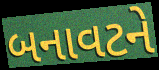
બનાવટને